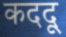
कददू